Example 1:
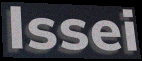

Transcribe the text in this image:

Issei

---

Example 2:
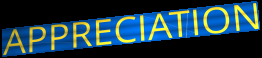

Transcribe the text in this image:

APPRECIATION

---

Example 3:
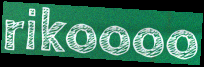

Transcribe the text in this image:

rikoooo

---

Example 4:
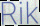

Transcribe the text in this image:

Rik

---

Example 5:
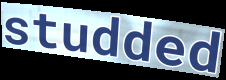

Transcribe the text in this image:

studded